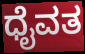
ಧೈವತ